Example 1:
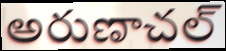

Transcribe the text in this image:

అరుణాచల్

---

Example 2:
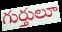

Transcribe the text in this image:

గుర్తులూ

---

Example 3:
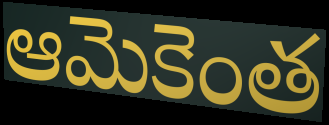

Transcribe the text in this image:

ఆమెకెంత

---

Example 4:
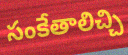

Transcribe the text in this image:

సంకేతాలిచ్చి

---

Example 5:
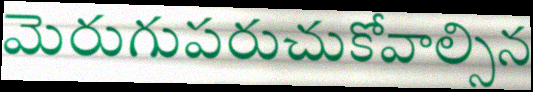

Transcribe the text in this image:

మెరుగుపరుచుకోవాల్సిన